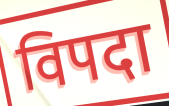
विपदा